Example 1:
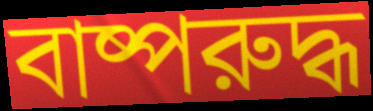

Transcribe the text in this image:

বাষ্পরুদ্ধ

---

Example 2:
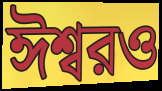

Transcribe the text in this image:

ঈশ্বরও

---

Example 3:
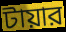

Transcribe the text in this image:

টায়ার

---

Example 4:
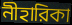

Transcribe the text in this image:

নীহারিকা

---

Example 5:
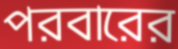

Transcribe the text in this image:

পরবারের